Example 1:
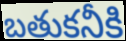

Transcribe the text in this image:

బతుకనీకి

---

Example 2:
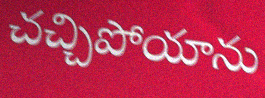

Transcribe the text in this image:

చచ్చిపోయాను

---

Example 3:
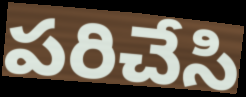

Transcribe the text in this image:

పరిచేసి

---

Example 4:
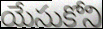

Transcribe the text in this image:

యేసుకోని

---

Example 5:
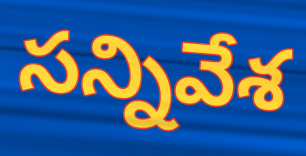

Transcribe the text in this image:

సన్నివేశ